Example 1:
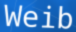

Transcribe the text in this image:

Weib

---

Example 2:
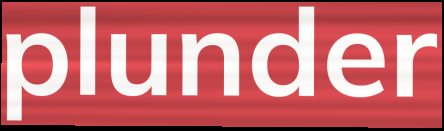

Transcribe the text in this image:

plunder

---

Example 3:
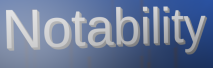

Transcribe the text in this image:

Notability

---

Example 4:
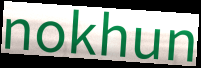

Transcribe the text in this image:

nokhun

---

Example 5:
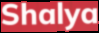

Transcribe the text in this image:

Shalya